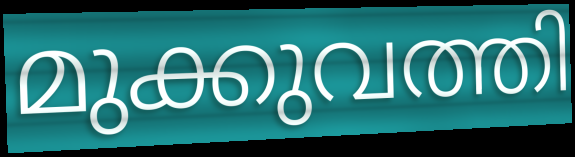
മുക്കുവത്തി